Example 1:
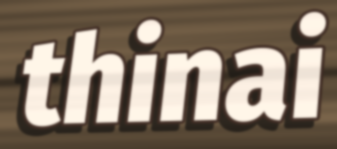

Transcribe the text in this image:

thinai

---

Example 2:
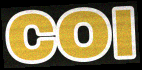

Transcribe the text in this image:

COI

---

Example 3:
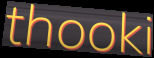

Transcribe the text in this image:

thooki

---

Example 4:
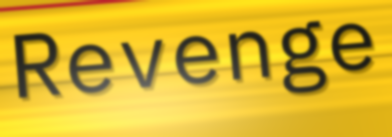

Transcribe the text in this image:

Revenge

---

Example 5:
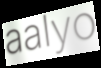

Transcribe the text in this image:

aalyo